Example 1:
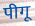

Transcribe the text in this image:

पीगू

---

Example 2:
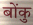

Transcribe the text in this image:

बोंकु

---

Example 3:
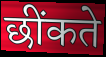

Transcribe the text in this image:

छींकते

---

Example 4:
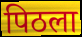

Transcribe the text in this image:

पिठला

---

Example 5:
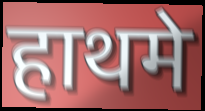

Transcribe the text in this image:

हाथमे